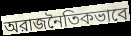
অরাজনৈতিকভাবে